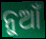
ନୁଆଁ